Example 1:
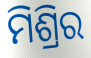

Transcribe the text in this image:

ମିଶ୍ରିର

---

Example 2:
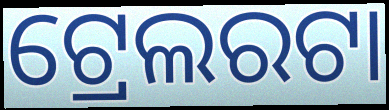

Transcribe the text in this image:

ଟ୍ରେଲରଟା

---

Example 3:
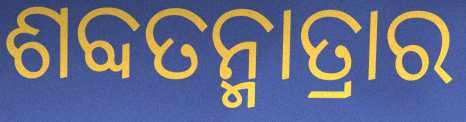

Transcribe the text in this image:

ଶବ୍ଦତନ୍ମାତ୍ରାର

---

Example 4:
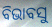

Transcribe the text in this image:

ବିଭାବସୁ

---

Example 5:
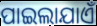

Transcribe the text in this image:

ପାଇଲାଯାଏଁ